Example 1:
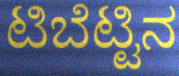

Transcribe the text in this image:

ಟಿಬೆಟ್ಟಿನ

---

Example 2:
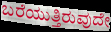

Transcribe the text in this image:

ಬರೆಯುತ್ತಿರುವುದೇ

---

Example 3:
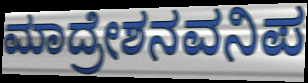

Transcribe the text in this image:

ಮಾದ್ರೇಶನವನಿಪ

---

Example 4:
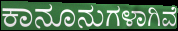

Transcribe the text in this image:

ಕಾನೂನುಗಳಾಗಿವೆ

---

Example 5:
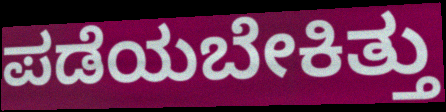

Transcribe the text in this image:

ಪಡೆಯಬೇಕಿತ್ತು